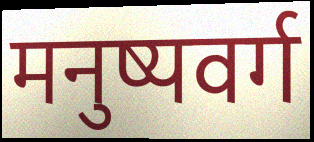
मनुष्यवर्ग